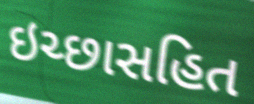
ઇચ્છાસહિત